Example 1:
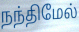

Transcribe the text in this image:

நந்திமேல்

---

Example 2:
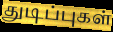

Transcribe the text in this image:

துடிப்புகள்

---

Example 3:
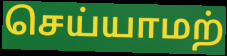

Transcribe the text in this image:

செய்யாமற்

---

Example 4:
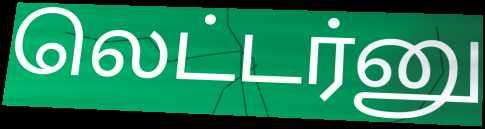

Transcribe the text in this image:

லெட்டர்னு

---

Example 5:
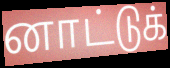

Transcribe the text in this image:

னாட்டுக்